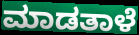
ಮಾಡತಾಳೆ